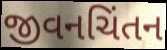
જીવનચિંતન